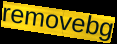
removebg